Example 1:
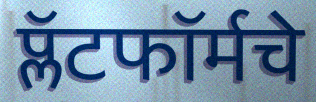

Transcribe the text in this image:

प्लॅटफॉर्मचे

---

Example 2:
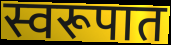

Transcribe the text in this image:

स्वरूपात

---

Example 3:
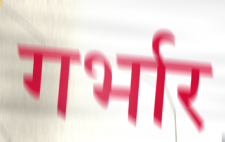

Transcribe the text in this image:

गर्भार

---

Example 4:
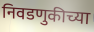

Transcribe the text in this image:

निवडणुकीच्या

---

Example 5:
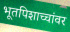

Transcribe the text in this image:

भूतपिशाच्चांवर